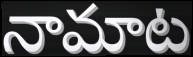
నామాట